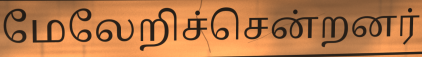
மேலேறிச்சென்றனர்